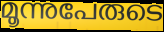
മൂന്നുപേരുടെ